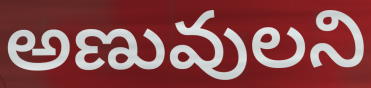
అణువులని